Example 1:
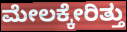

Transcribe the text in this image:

ಮೇಲಕ್ಕೇರಿತ್ತು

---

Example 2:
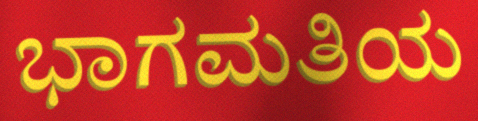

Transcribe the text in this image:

ಭಾಗಮತಿಯ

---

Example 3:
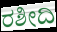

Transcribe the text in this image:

ರಶೀದಿ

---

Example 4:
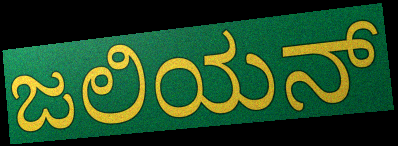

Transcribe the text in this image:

ಜಲಿಯನ್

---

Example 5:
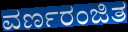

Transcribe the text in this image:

ವರ್ಣರಂಜಿತ